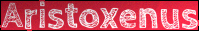
Aristoxenus